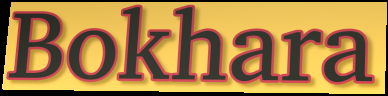
Bokhara